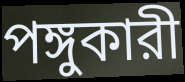
পঙ্গুকারী